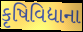
કૃષિવિદ્યાના